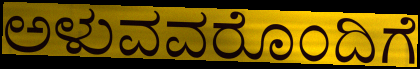
ಅಳುವವರೊಂದಿಗೆ